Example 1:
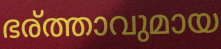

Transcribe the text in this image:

ഭര്ത്താവുമായ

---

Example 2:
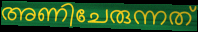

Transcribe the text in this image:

അണിചേരുന്നത്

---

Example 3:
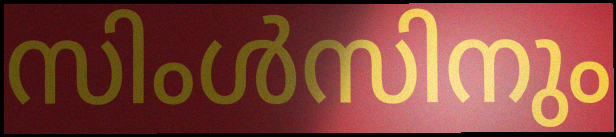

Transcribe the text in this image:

സിംൾസിനും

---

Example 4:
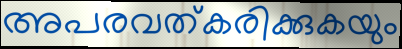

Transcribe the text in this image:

അപരവത്കരിക്കുകയും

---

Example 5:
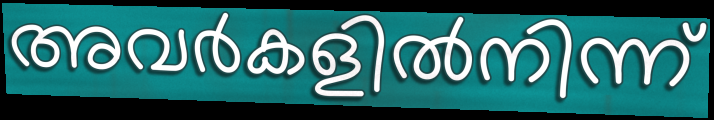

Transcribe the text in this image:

അവർകളിൽനിന്ന്